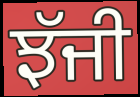
ਝੱਜੀ